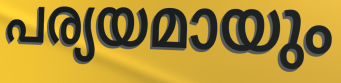
പര്യയമായും